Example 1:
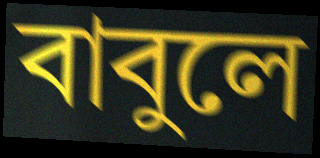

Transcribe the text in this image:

বাবুলে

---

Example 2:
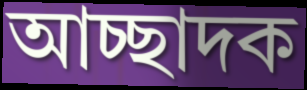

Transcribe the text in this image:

আচ্ছাদক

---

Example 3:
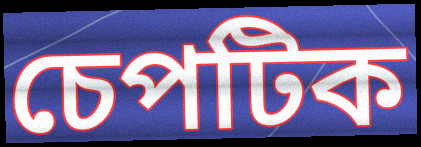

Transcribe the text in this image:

চেপটিক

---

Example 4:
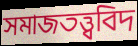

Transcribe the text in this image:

সমাজতত্ত্ববিদ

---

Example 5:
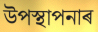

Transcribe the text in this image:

উপস্থাপনাৰ